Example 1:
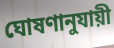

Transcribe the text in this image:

ঘোষণানুযায়ী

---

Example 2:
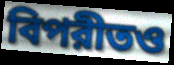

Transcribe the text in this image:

বিপরীতও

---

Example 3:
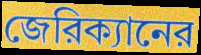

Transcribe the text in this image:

জেরিক্যানের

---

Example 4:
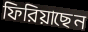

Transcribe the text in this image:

ফিরিয়াছেন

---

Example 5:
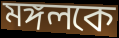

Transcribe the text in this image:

মঙ্গলকে